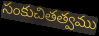
సంకుచితత్వము